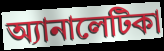
অ্যানালেটিকা